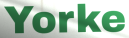
Yorke